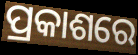
ପ୍ରକାଶରେ